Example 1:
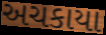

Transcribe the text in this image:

અચકાયા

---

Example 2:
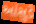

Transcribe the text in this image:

આંસુડે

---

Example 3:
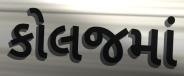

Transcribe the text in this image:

કોલજમાં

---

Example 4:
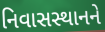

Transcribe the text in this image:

નિવાસસ્થાનને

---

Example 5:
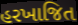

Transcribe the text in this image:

હરખાજિત